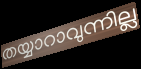
തയ്യാറാവുന്നില്ല